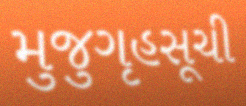
મુજુગૃહસૂચી